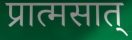
प्रात्मसात्